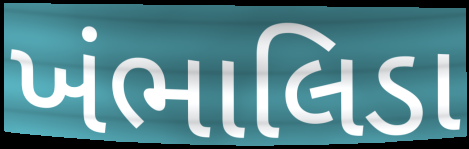
ખંભાલિડા